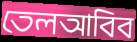
তেলআবিব